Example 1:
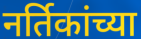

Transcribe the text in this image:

नर्तिकांच्या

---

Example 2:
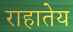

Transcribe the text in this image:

राहातेय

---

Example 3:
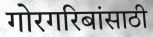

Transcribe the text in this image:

गोरगरिबांसाठी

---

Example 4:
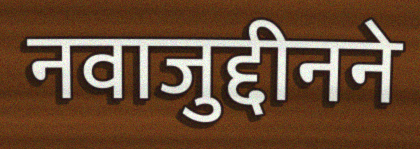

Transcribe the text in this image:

नवाजुद्दीनने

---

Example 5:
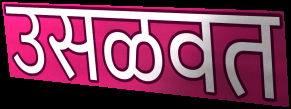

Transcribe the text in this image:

उसळवत